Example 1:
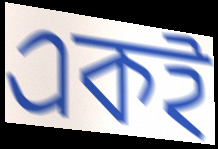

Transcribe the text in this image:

একই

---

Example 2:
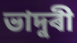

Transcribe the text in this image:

ভাদুৰী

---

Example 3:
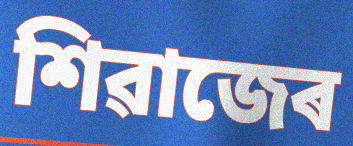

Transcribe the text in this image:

শিৱাজেৰ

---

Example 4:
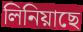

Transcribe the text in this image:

লিনিয়াছে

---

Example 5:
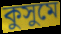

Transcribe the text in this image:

কুসুমে